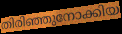
തിരിഞ്ഞുനോക്കിയ